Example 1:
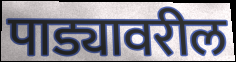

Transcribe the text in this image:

पाड्यावरील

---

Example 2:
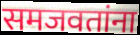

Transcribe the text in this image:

समजवतांना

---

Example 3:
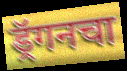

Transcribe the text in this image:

ड्रॅगनचा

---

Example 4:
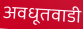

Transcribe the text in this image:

अवधूतवाडी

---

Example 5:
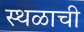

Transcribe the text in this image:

स्थळाची